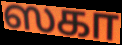
ஸகா